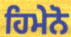
ਹਿਮੇਨੋ